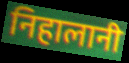
निहालानी